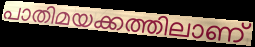
പാതിമയക്കത്തിലാണ്